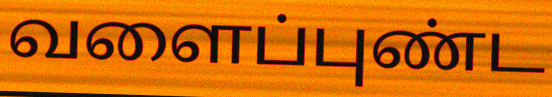
வளைப்புண்ட